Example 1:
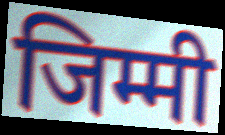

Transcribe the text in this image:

जिम्मी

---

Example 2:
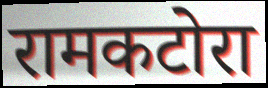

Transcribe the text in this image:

रामकटोरा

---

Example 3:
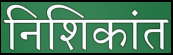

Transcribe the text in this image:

निशिकांत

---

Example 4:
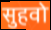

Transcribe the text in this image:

सुहवो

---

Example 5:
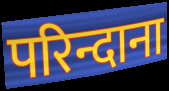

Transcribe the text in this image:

परिन्दाना